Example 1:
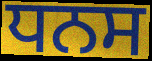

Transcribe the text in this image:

ਧਨਸ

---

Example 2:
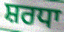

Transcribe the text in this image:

ਸ਼ਰਧਾ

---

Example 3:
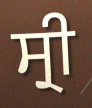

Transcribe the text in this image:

ਸ੍ਰੀ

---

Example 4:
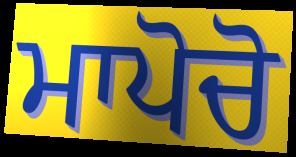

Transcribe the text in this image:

ਮਾਪੋਚੋ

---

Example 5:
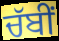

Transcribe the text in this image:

ਚੱਬੀਂ